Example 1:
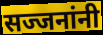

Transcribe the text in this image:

सज्जनांनी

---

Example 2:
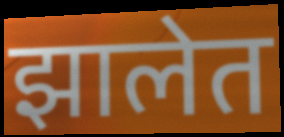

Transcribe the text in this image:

झालेत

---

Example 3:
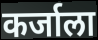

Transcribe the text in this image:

कर्जाला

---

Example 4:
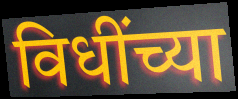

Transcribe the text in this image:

विधींच्या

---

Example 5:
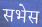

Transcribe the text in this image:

सभेस